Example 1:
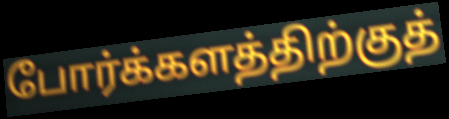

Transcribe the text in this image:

போர்க்களத்திற்குத்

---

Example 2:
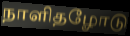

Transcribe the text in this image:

நாளிதழோடு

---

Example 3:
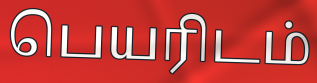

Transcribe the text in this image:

பெயரிடம்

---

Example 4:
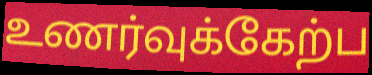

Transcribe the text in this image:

உணர்வுக்கேற்ப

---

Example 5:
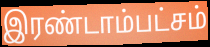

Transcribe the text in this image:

இரண்டாம்பட்சம்